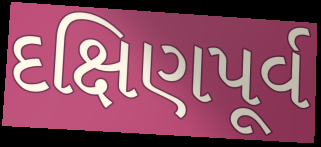
દક્ષિણપૂર્વ